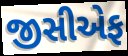
જીસીએફ